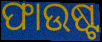
ଫାଉଷ୍ଟ